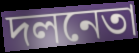
দলনেতা